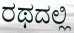
ರಥದಲ್ಲಿ